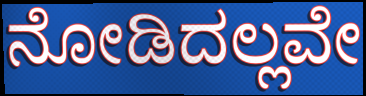
ನೋಡಿದಲ್ಲವೇ